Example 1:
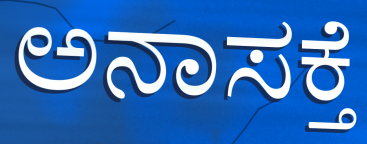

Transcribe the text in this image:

ಅನಾಸಕ್ತೆ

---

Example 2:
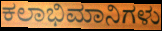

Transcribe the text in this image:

ಕಲಾಭಿಮಾನಿಗಳು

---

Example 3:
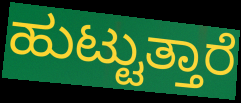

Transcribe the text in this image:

ಹುಟ್ಟುತ್ತಾರೆ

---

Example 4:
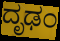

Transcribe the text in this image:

ದೃಢಂ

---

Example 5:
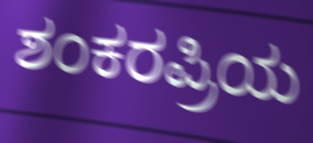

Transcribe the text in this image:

ಶಂಕರಪ್ರಿಯ